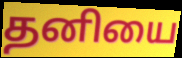
தனியை